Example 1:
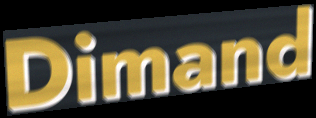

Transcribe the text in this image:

Dimand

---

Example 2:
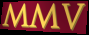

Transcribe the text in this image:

MMV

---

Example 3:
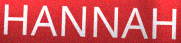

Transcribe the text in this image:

HANNAH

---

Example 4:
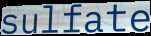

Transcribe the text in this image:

sulfate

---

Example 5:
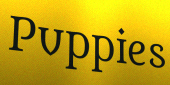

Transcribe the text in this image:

Puppies